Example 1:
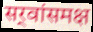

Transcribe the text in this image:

सर्वांसमक्ष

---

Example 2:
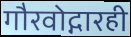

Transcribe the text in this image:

गौरवोद्गारही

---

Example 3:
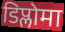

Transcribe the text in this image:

डिप्लोमा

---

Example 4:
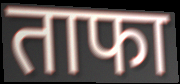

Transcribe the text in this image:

ताफा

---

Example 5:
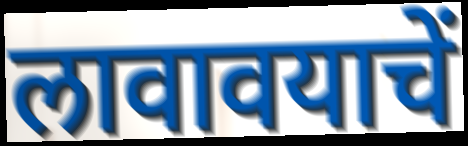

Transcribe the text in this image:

लावावयाचें